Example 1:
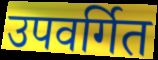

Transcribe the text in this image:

उपवर्गित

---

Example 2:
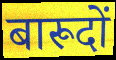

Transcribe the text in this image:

बारूदों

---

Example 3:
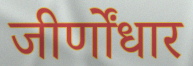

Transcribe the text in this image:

जीर्णोंधार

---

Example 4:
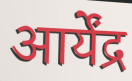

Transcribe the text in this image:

आर्येंद्र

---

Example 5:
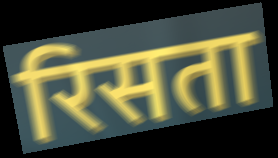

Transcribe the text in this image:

रिसता